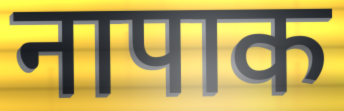
नापाक